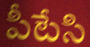
పీటేసి